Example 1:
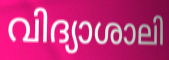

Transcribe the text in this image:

വിദ്യാശാലി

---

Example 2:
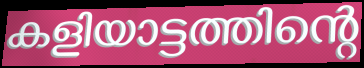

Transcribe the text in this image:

കളിയാട്ടത്തിന്റെ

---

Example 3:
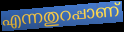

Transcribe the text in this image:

എന്നതുറപ്പാണ്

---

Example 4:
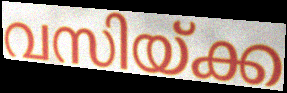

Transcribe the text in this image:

വസിയ്ക്ക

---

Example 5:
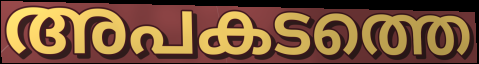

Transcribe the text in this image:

അപകടത്തെ